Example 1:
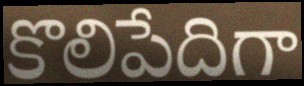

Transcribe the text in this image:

కొలిపేదిగా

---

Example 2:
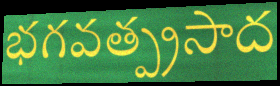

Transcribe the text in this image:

భగవత్ప్రసాద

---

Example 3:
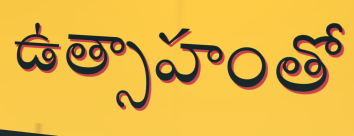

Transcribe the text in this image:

ఉత్సాహంతో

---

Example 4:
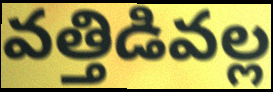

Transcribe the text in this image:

వత్తిడివల్ల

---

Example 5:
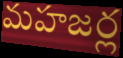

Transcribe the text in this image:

మహజర్ల